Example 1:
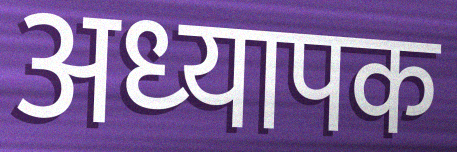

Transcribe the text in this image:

अध्‍यापक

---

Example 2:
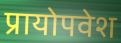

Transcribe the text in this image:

प्रायोपवेश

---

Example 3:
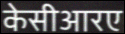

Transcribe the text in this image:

केसीआरए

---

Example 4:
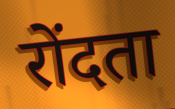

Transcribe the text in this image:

रोंदता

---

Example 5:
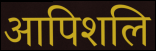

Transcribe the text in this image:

आपिशलि